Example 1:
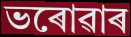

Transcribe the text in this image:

ভৰোৱাৰ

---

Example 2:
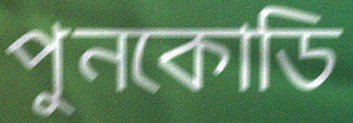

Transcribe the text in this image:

পুনকোডি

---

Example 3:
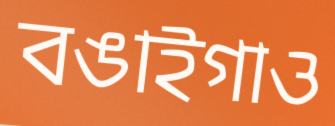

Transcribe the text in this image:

বঙাইগাও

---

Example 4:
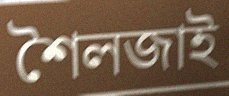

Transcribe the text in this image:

শৈলজাই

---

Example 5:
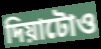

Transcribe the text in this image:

দিয়াটোও